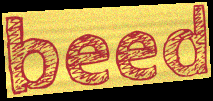
beed